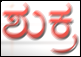
ಶುಕ್ರ